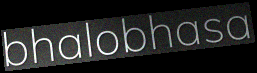
bhalobhasa